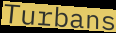
Turbans